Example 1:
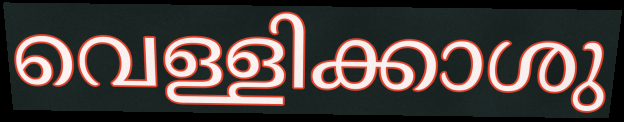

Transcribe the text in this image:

വെള്ളിക്കാശു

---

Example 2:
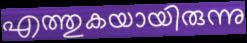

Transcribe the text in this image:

എത്തുകയായിരുന്നു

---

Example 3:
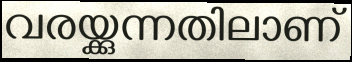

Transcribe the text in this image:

വരയ്ക്കുന്നതിലാണ്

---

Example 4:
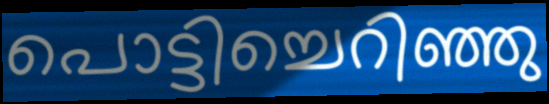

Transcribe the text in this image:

പൊട്ടിച്ചെറിഞ്ഞു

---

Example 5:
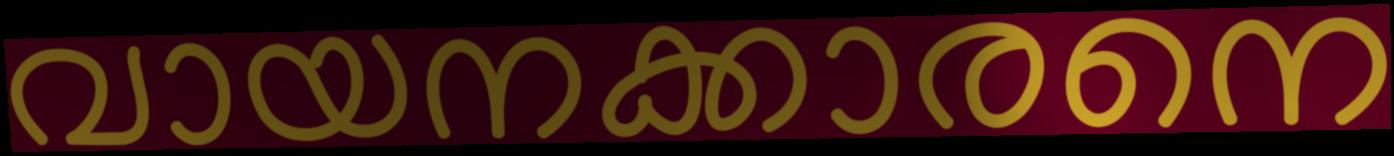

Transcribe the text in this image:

വായനക്കാരനെ